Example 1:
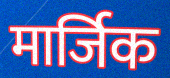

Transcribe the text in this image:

मार्जिक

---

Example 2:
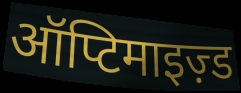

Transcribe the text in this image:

ऑप्टिमाइज़्ड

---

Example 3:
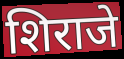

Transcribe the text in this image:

शिराजे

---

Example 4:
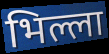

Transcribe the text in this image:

भिल्ला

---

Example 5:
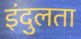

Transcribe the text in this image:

इंदुलता